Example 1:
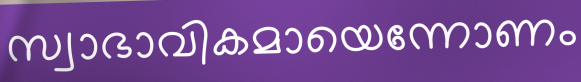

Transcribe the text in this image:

സ്വാഭാവികമായെന്നോണം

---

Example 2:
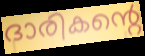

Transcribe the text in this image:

ദാരികന്റെ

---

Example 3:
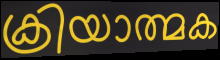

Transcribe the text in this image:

ക്രിയാത്മക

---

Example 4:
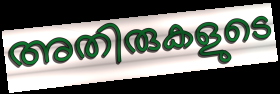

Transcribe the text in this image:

അതിരുകളുടെ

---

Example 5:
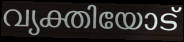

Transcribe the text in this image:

വ്യക്തിയോട്